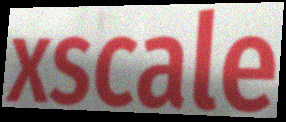
xscale